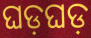
ଘଡ଼ଘଡ଼